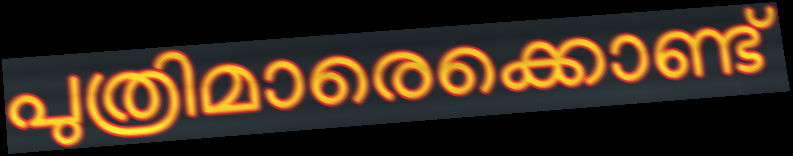
പുത്രിമാരെക്കൊണ്ട്